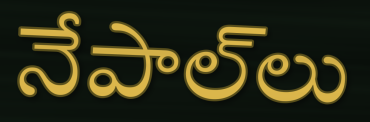
నేపాల్‌లు